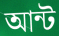
আন্ট